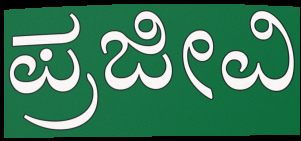
ಪ್ರಜೀವಿ